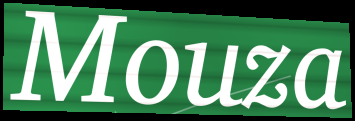
Mouza